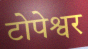
टोपेश्वर